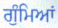
ਗੁੰਮਿਆਂ